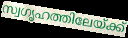
സ്വഗൃഹത്തിലേയ്ക്ക്